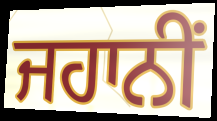
ਜਹਾਨੀਂ